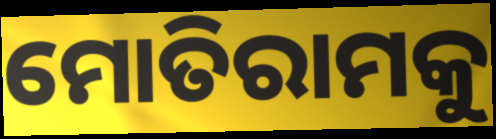
ମୋତିରାମକୁ